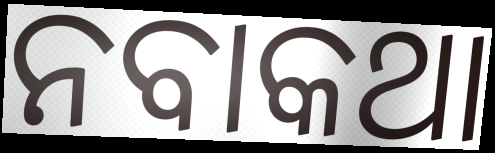
ନବାକଥା